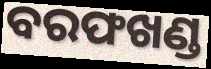
ବରଫଖଣ୍ଡ